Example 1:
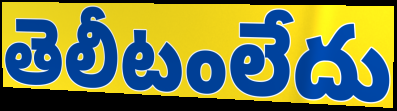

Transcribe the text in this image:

తెలీటంలేదు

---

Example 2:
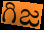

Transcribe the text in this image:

గిజ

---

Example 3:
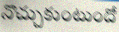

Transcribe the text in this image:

నొచ్చుకుంటుందో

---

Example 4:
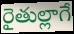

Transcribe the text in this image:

రైతుల్లాగే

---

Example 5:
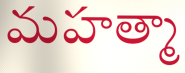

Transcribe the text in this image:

మహత్మా